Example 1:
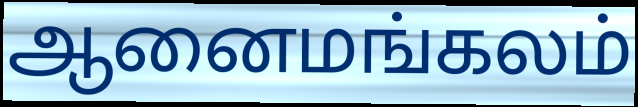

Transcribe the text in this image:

ஆனைமங்கலம்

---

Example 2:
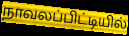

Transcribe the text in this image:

நாவலப்பிட்டியில்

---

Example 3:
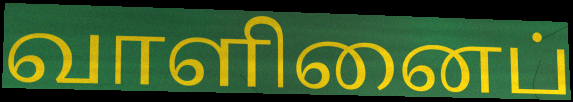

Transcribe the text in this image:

வாளினைப்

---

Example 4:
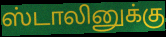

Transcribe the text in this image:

ஸ்டாலினுக்கு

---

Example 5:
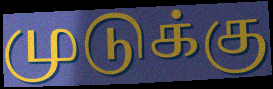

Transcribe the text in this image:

முடுக்கு